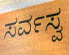
ಸರ್ವಸ್ವ